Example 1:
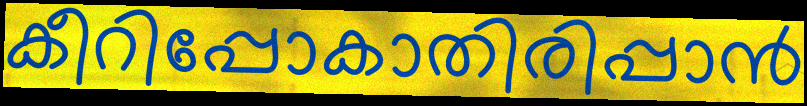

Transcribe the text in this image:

കീറിപ്പോകാതിരിപ്പാൻ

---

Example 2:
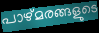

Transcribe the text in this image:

പാഴ്മരങ്ങളുടെ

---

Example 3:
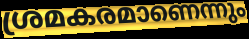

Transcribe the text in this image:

ശ്രമകരമാണെന്നും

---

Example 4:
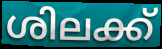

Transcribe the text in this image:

ശിലക്ക്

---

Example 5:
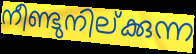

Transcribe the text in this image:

നീണ്ടുനില്ക്കുന്ന